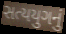
સત્યયુગનું